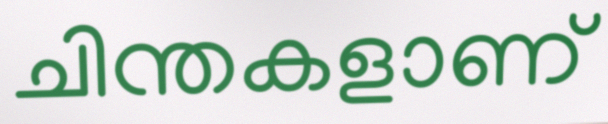
ചിന്തകളാണ്